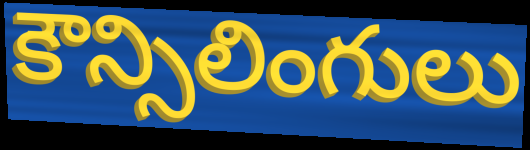
కౌన్సిలింగులు